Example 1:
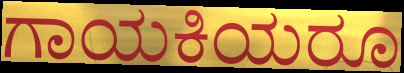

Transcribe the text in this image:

ಗಾಯಕಿಯರೂ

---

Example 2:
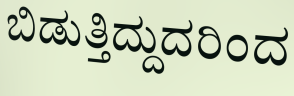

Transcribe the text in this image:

ಬಿಡುತ್ತಿದ್ದುದರಿಂದ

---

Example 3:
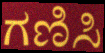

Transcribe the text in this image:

ಗಣಿಸಿ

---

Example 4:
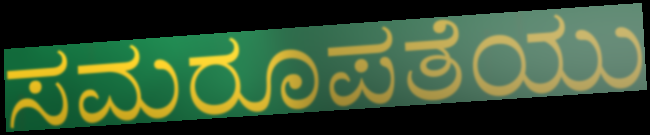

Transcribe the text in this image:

ಸಮರೂಪತೆಯು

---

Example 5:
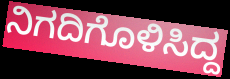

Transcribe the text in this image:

ನಿಗದಿಗೊಳಿಸಿದ್ದ